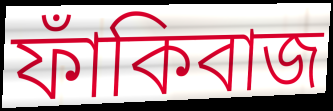
ফাঁকিবাজ